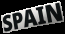
SPAIN